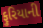
ફુરિયાની